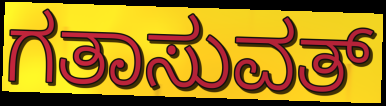
ಗತಾಸುವತ್